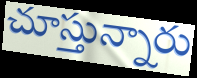
చూస్తున్నారు